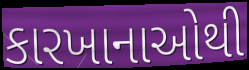
કારખાનાઓથી